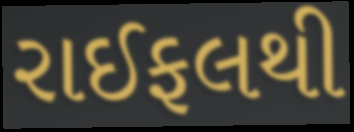
રાઈફલથી